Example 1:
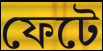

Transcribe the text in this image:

ফেটে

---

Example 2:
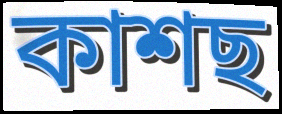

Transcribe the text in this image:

কাশছ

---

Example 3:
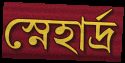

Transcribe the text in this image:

স্নেহার্দ্র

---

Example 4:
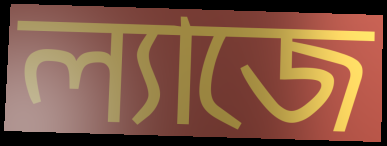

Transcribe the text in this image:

ল্যাজে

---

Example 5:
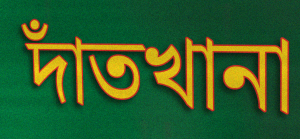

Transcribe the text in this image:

দাঁতখানা